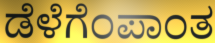
ಡೆಳೆಗೆಂಪಾಂತ